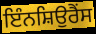
ਇੰਨਸ਼ਿਉਰੈਂਸ